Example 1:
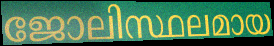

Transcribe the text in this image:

ജോലിസ്ഥലമായ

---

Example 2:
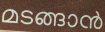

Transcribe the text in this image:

മടങ്ങാൻ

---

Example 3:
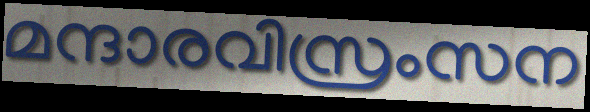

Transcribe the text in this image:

മന്ദാരവിസ്രംസന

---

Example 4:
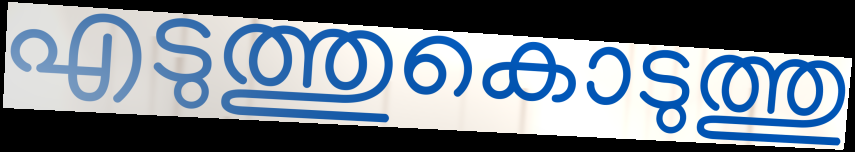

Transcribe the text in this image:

എടുത്തുകൊടുത്തു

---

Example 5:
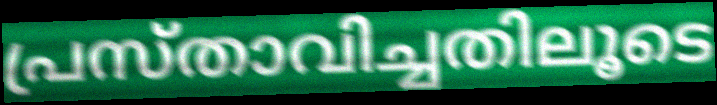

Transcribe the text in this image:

പ്രസ്താവിച്ചതിലൂടെ